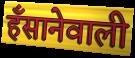
हँसानेवाली